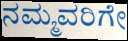
ನಮ್ಮವರಿಗೇ